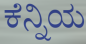
ಕೆನ್ನಿಯ